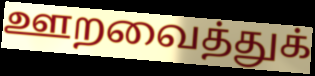
ஊறவைத்துக்